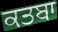
ਕਤਬਾ